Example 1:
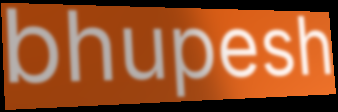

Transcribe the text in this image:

bhupesh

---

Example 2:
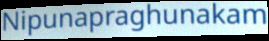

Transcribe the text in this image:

Nipunapraghunakam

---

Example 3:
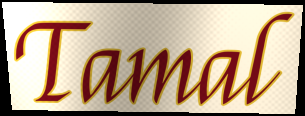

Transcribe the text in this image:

Tamal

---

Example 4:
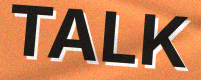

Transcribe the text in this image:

TALK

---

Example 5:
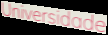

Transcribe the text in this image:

Universidade